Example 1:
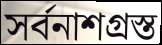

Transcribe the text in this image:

সর্বনাশগ্রস্ত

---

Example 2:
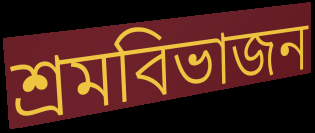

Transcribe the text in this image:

শ্রমবিভাজন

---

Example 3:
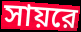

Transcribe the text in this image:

সায়রে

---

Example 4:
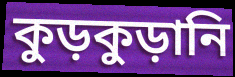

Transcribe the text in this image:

কুড়কুড়ানি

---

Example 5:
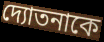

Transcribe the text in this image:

দ্যোতনাকে